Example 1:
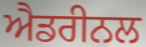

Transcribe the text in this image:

ਐਡਰੀਨਲ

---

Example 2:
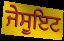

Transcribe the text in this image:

ਜੇਸੂਇਟ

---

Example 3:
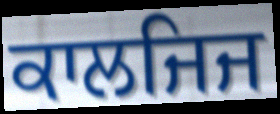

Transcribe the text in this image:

ਕਾਲਜਿਜ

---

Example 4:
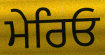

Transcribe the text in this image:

ਮੇਰਿਓ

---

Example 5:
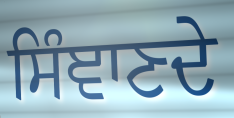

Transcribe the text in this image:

ਸਿੰਞਾਣਦੇ